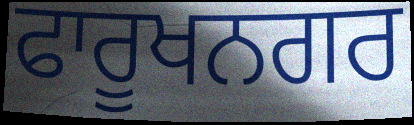
ਫਾਰੂਖਨਗਰ